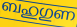
ബഹുഗുണ